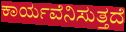
ಕಾರ್ಯವೆನಿಸುತ್ತದೆ